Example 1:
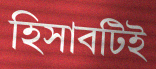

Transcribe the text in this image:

হিসাবটিই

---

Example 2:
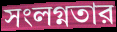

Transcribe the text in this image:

সংলগ্নতার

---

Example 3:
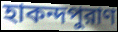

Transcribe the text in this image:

হাকন্দপুরাণ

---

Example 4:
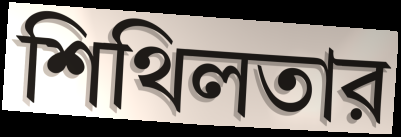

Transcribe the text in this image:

শিথিলতার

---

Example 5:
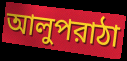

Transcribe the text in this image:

আলুপরাঠা